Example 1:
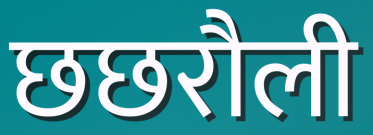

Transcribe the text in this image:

छछरौली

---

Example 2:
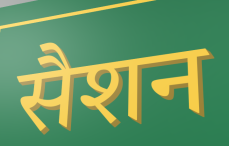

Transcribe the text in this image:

सैशन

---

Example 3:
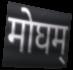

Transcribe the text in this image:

मोघम्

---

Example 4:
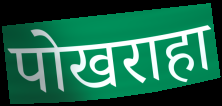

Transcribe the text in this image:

पोखराहा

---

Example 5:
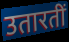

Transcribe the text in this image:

उतारतीं